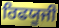
ਰਿਫਯੂਜੀ